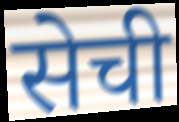
सेची